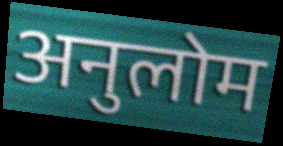
अनुलोम